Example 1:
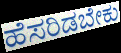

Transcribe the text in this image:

ಹೆಸರಿಡಬೇಕು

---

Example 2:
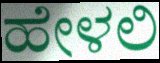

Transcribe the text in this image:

ಹೇಳಲಿ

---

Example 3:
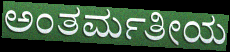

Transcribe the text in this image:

ಅಂತರ್ಮತೀಯ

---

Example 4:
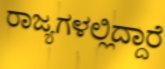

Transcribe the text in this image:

ರಾಜ್ಯಗಳಲ್ಲಿದ್ದಾರೆ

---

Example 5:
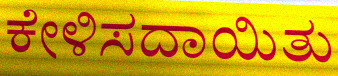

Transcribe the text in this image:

ಕೇಳಿಸದಾಯಿತು